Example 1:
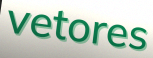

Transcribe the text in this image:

vetores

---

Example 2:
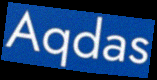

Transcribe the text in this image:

Aqdas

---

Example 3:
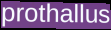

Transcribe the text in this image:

prothallus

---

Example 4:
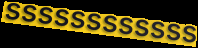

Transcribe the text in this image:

ssssssssssss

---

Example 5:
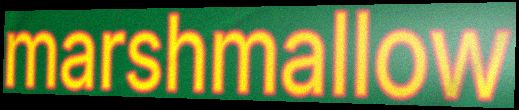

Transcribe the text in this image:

marshmallow